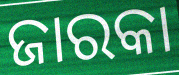
ଜାରକା